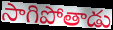
సాగిపోతాడు